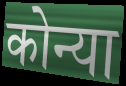
कोन्या